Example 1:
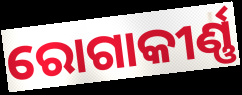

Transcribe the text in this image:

ରୋଗାକୀର୍ଣ୍ଣ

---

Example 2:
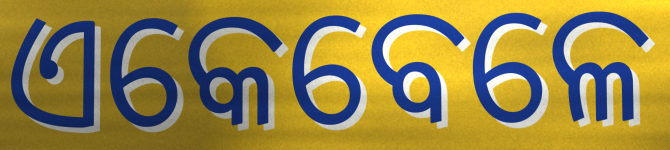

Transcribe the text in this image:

ଏକେବେଳେ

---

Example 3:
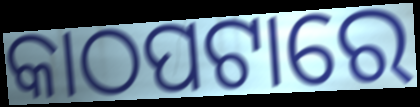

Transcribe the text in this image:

କାଠପଟାରେ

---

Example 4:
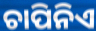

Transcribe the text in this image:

ଚାପିନିଏ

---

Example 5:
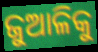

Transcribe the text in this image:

ଜୁଆଳିକୁ